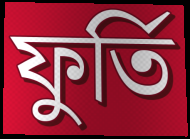
ফুৰ্তি